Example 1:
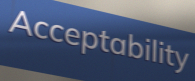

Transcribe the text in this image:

Acceptability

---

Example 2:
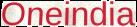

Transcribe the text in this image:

Oneindia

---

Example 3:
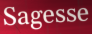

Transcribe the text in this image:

Sagesse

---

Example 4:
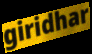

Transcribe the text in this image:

giridhar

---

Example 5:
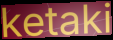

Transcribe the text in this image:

ketaki